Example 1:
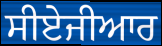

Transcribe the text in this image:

ਸੀਏਜੀਆਰ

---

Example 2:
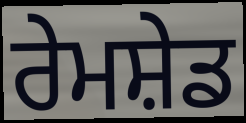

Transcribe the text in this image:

ਰੇਮਸ਼ੇਡ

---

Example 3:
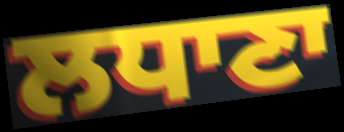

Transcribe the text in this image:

ਲਧਾਣਾ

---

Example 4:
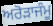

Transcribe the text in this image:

ਅਰੋੜਾਜੰਮੂ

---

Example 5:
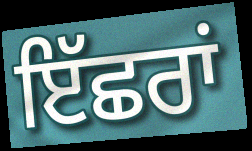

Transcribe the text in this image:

ਇੱਛਰਾਂ